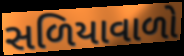
સળિયાવાળો